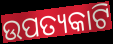
ଉପତ୍ୟକାଟି